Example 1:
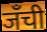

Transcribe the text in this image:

जँची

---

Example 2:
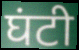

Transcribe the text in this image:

घंटी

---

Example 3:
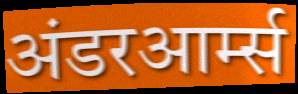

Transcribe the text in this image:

अंडरआर्म्‍स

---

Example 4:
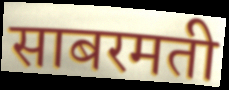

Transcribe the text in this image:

साबरमती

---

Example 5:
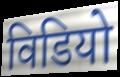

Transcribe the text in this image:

विडियो